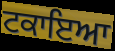
ਟਕਾਇਆ